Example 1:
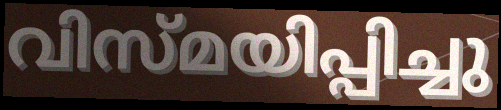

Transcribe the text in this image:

വിസ്മയിപ്പിച്ചു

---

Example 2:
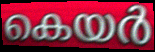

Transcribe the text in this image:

കെയർ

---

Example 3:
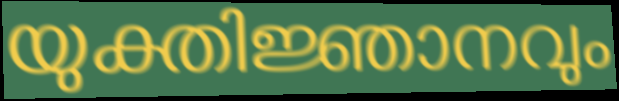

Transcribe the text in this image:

യുക്തിജ്ഞാനവും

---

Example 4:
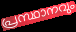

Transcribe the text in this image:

പ്രസ്ഥാനവും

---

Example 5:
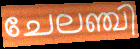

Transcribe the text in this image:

ചേലഞ്ചി